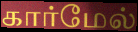
கார்மேல்